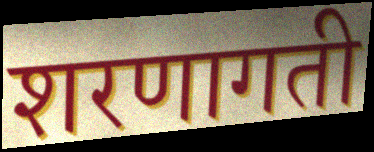
शरणागती